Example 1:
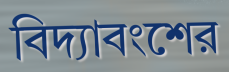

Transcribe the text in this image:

বিদ্যাবংশের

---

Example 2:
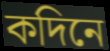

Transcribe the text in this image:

কদিনে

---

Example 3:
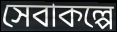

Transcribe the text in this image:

সেবাকল্পে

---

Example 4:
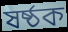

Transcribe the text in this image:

ষষ্ঠক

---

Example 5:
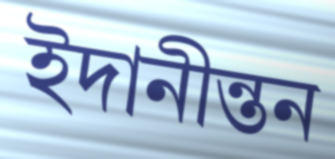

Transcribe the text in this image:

ইদানীন্তন